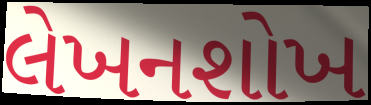
લેખનશોખ